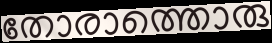
തോരാത്തൊരു